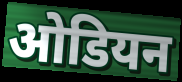
ओडियन